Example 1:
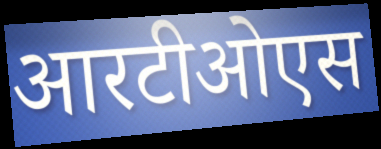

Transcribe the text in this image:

आरटीओएस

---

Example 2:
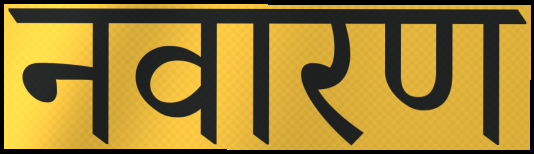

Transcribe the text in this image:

नवारण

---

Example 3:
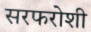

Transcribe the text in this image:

सरफरोशी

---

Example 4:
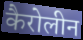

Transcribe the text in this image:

कैरोलीन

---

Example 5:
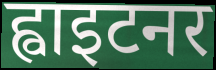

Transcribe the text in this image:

ह्वाइटनर